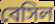
বেসিল